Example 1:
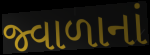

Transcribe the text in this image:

જ્વાળાનાં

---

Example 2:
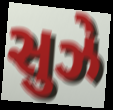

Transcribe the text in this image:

સુઝે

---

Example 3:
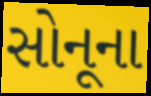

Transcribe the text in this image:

સોનૂના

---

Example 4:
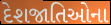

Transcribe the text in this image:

દેશજાતિઓના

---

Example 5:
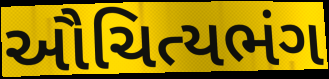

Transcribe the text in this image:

ઔચિત્યભંગ